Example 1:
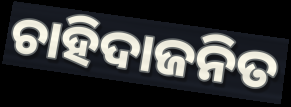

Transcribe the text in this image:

ଚାହିଦାଜନିତ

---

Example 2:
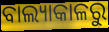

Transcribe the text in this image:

ବାଲ୍ୟାକାଳରୁ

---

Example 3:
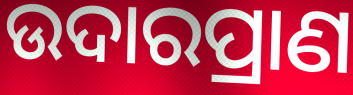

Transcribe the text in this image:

ଉଦାରପ୍ରାଣ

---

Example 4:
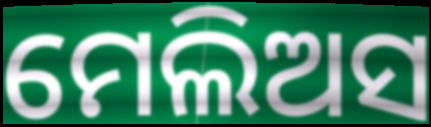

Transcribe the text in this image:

ମେଲିଅସ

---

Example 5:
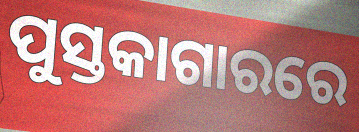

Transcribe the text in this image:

ପୁସ୍ତକାଗାରରେ